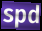
spd